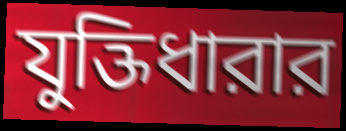
যুক্তিধারার